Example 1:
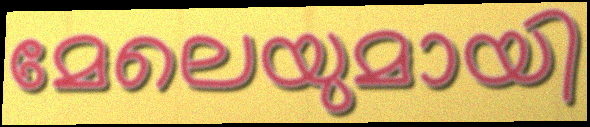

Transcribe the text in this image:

മേലെയുമായി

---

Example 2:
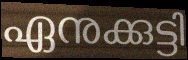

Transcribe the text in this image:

ഏനുക്കുട്ടി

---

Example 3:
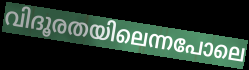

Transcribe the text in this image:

വിദൂരതയിലെന്നപോലെ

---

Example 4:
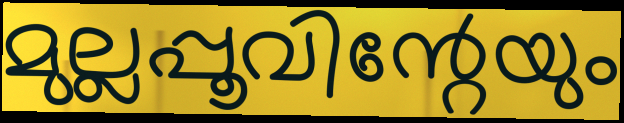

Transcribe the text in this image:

മുല്ലപ്പൂവിന്റേയും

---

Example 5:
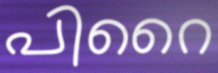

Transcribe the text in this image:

പിറൈ